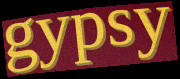
gypsy